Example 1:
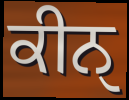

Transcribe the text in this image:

ਕੀਨੑ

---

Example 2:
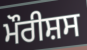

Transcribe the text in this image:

ਮੌਰੀਸ਼ਸ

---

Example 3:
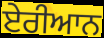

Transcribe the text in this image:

ਏਰੀਆਨ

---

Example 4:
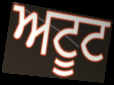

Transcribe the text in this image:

ਅਟੂਟ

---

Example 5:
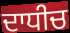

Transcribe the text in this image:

ਦਾਧੀਚ